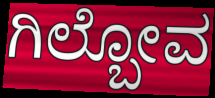
ಗಿಲ್ಬೋವ